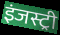
इंजस्ट्री